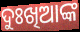
ଦୁଃଖିଆଙ୍କ